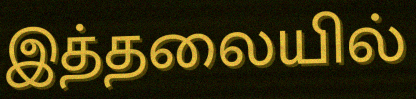
இத்தலையில்